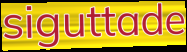
siguttade